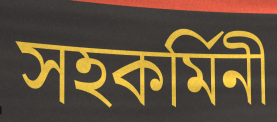
সহকর্মিনী